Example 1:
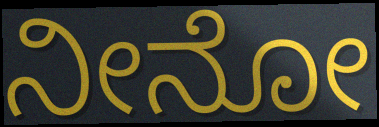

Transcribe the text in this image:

ನೀನೋ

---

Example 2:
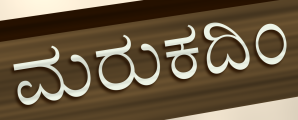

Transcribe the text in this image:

ಮರುಕದಿಂ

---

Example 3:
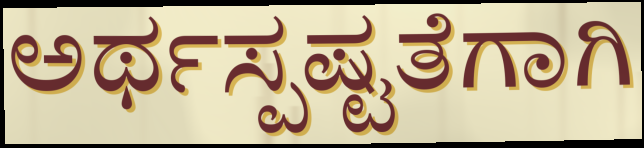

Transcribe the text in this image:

ಅರ್ಥಸ್ಪಷ್ಟತೆಗಾಗಿ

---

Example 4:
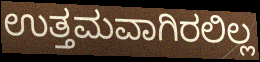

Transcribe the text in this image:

ಉತ್ತಮವಾಗಿರಲಿಲ್ಲ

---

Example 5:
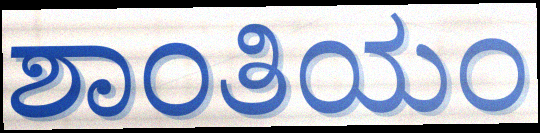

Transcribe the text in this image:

ಶಾಂತಿಯಂ